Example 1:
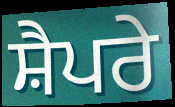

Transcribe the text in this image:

ਸ਼ੈਪਰੇ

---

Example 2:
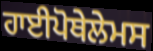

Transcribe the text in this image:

ਹਾਈਪੋਥੇਲੇਮਸ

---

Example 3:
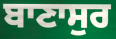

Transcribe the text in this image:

ਬਾਣਾਸੁਰ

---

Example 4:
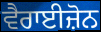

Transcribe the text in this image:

ਵੈਰਾਈਜ਼ੋਨ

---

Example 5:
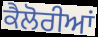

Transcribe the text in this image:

ਕੈਲੋਰੀਆਂ